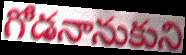
గోడనానుకుని